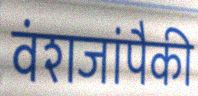
वंशजांपैकी